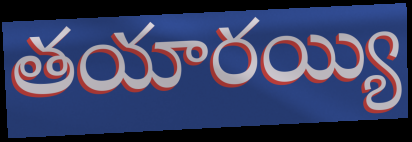
తయారయ్యి